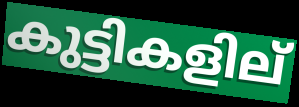
കുട്ടികളില്